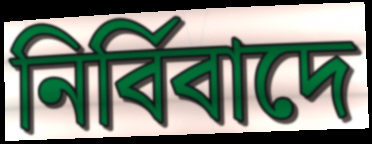
নিৰ্বিবাদে